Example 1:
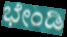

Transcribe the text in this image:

ಭೇಂಡಿ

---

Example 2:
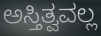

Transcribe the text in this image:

ಅಸ್ತಿತ್ವವಲ್ಲ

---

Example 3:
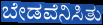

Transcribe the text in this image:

ಬೇಡವೆನಿಸಿತು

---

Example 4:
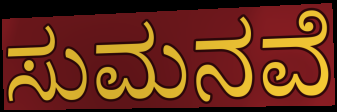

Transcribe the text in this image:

ಸುಮನವೆ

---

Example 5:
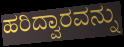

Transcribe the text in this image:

ಹರಿದ್ವಾರವನ್ನು